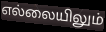
எல்லையிலும்